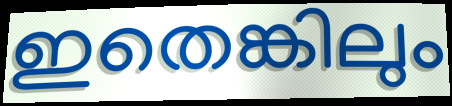
ഇതെങ്കിലും